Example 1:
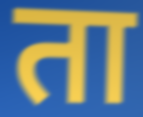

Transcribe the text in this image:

ता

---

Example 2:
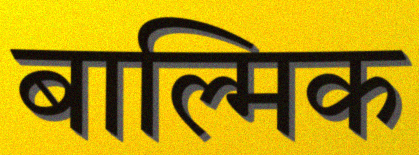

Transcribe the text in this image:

बाल्मिक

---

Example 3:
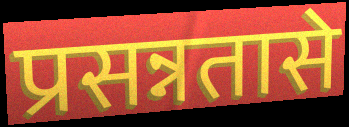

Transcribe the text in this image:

प्रसन्नतासे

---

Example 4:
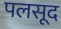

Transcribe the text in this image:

पलसूद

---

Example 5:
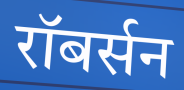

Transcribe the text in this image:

रॉबर्सन